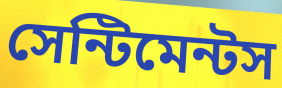
সেন্টিমেন্টস